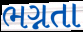
ભગ્નતા